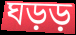
ঘড়ড়